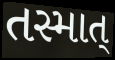
તસ્માત્